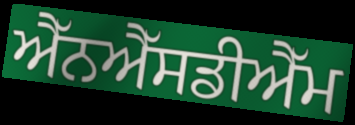
ਐੱਨਐੱਸਡੀਐੱਮ